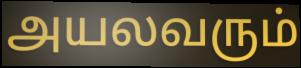
அயலவரும்